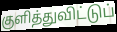
குளித்துவிட்டுப்